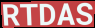
RTDAS